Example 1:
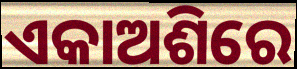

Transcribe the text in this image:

ଏକାଅଶିରେ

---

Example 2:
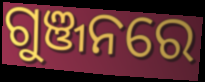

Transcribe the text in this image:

ଗୁଞ୍ଜନରେ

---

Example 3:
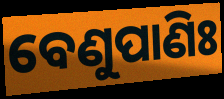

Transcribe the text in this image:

ବେଣୁପାଣିଃ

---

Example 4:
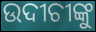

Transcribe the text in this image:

ଉଦୀଚୀଙ୍କୁ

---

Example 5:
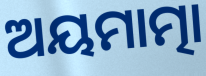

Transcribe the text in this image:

ଅୟମାତ୍ମା